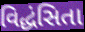
વિદ્ધંસિતા